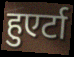
हुएर्टा